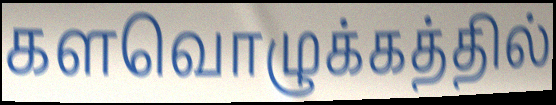
களவொழுக்கத்தில்